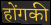
होंगकी